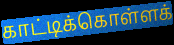
காட்டிக்கொள்ளக்